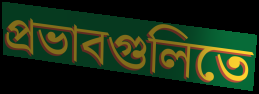
প্রভাবগুলিতে